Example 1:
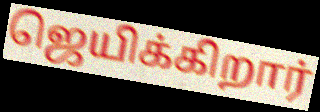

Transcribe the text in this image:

ஜெயிக்கிறார்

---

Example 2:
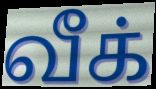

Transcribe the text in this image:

வீக்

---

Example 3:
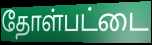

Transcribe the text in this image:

தோள்பட்டை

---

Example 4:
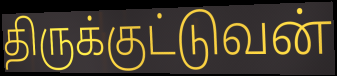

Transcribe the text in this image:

திருக்குட்டுவன்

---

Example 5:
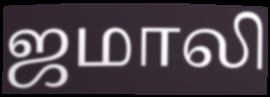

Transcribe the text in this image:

ஜமாலி